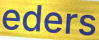
eders